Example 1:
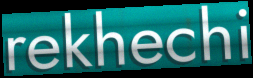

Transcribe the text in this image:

rekhechi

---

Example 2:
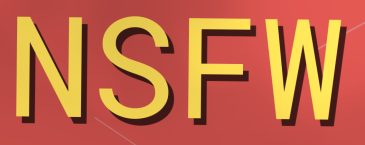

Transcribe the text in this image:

NSFW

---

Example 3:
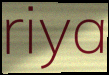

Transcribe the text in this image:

riya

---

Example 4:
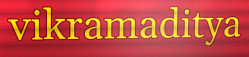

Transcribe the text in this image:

vikramaditya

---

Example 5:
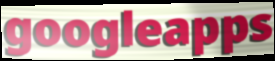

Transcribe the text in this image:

googleapps